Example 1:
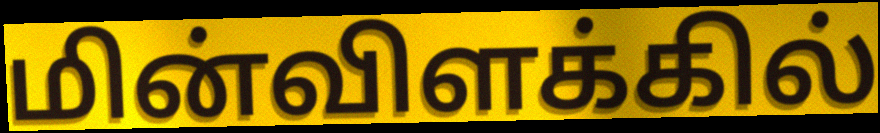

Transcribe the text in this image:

மின்விளக்கில்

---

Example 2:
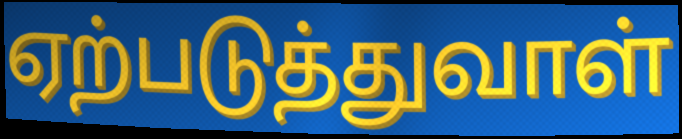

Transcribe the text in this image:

ஏற்படுத்துவாள்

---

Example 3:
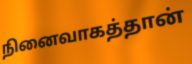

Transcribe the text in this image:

நினைவாகத்தான்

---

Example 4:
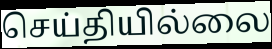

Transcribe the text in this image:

செய்தியில்லை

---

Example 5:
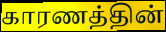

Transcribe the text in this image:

காரணத்தின்